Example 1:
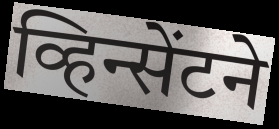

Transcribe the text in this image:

व्हिन्सेंटने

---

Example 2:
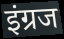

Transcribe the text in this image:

इंग्रज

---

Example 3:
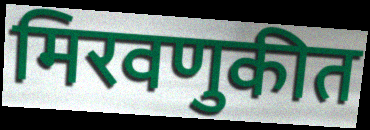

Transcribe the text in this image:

मिरवणुकीत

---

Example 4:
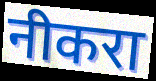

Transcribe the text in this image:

नीकरा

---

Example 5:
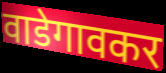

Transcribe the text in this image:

वाडेगावकर